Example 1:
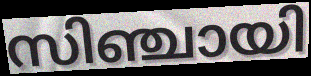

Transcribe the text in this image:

സിഞ്ചായി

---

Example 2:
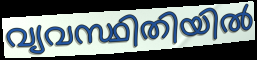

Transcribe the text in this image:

വ്യവസ്ഥിതിയിൽ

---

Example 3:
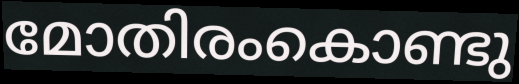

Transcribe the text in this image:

മോതിരംകൊണ്ടു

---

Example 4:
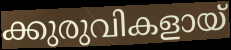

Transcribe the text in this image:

ക്കുരുവികളായ്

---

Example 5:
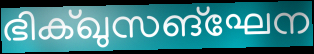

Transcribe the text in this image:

ഭിക്ഖുസങ്ഘേന